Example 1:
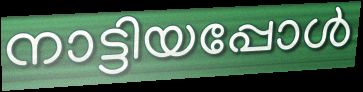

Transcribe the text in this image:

നാട്ടിയപ്പോൾ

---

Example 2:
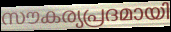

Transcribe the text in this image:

സൗകര്യപ്രദമായി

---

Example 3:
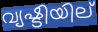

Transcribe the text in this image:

വ്യഷ്ടിയില്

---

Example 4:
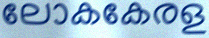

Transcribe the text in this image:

ലോകകേരള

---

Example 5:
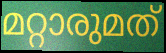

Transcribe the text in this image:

മറ്റാരുമത്